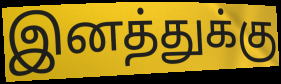
இனத்துக்கு